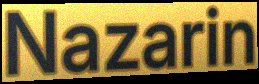
Nazarin